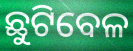
ଛୁଟିବେଳ